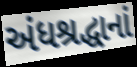
અંધશ્રદ્ધાનાં